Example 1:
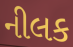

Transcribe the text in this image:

નીલક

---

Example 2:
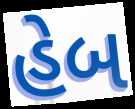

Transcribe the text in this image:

હેબ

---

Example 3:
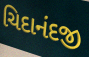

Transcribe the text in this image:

ચિદાનંદજી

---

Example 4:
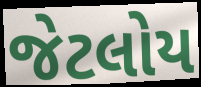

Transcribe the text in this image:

જેટલોય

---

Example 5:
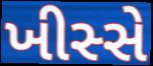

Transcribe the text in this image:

ખીસ્સે